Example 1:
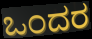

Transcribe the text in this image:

ಒಂದರ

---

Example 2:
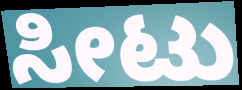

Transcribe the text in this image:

ಸೀಟು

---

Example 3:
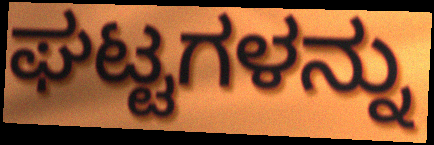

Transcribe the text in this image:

ಘಟ್ಟಗಳನ್ನು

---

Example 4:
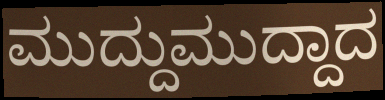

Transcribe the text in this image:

ಮುದ್ದುಮುದ್ದಾದ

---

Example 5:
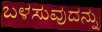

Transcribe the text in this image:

ಬಳಸುವುದನ್ನು